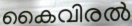
കൈവിരൽ